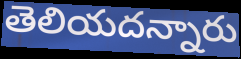
తెలియదన్నారు